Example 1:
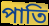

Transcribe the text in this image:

পাতি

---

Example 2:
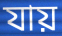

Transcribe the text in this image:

যায়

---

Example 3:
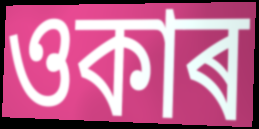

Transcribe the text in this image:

ওকাৰ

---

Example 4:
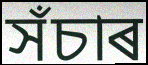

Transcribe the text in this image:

সঁচাৰ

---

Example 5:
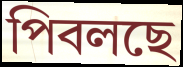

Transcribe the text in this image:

পিবলছে